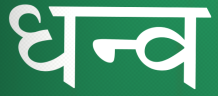
धन्व